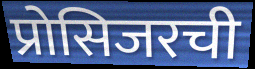
प्रोसिजरची